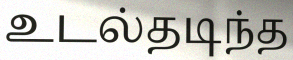
உடல்தடிந்த